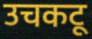
उचकटू